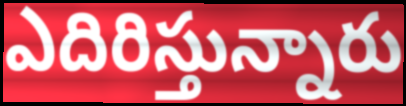
ఎదిరిస్తున్నారు